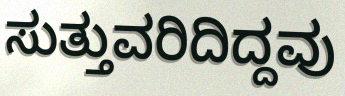
ಸುತ್ತುವರಿದಿದ್ದವು